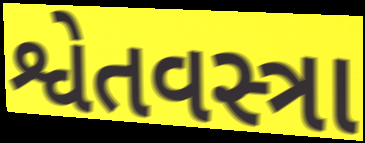
શ્વેતવસ્ત્રા